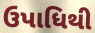
ઉપાધિથી